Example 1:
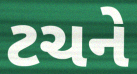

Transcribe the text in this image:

ટચને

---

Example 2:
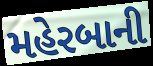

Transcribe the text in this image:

મહેરબાની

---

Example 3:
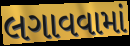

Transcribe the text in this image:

લગાવવામાં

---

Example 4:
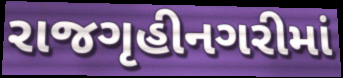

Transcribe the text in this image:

રાજગૃહીનગરીમાં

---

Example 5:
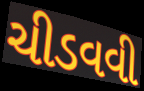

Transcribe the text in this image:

ચીડવવી